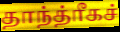
தாந்த்ரீகச்